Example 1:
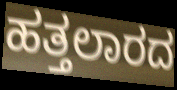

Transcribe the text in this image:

ಹತ್ತಲಾರದ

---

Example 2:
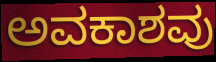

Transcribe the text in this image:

ಅವಕಾಶವು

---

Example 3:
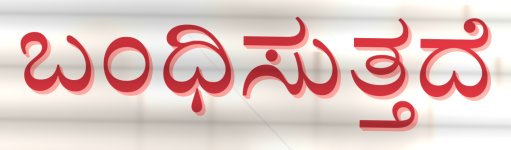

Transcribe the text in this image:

ಬಂಧಿಸುತ್ತದೆ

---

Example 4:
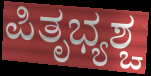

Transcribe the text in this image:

ಪಿತೃಭ್ಯಶ್ಚ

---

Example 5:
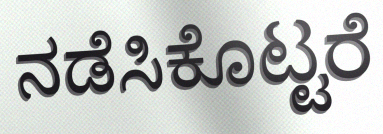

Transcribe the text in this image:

ನಡೆಸಿಕೊಟ್ಟರೆ